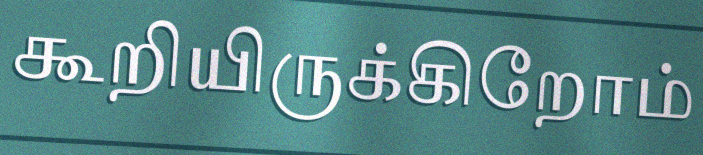
கூறியிருக்கிறோம்